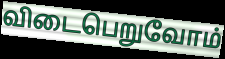
விடைபெறுவோம்